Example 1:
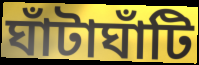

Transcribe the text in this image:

ঘাঁটাঘাঁটি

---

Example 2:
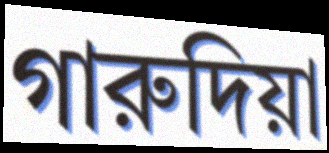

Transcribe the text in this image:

গারুদিয়া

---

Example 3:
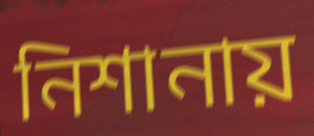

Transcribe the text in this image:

নিশানায়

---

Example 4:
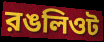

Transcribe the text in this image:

রঙলিওট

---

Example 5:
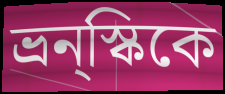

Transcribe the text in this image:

ভ্রন্‌স্কিকে